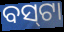
ବସ୍‍ଟା